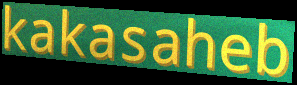
kakasaheb